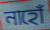
নাহোঁ